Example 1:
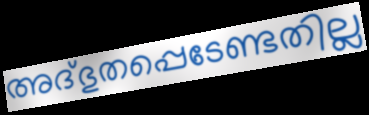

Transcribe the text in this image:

അദ്ഭുതപ്പെടേണ്ടതില്ല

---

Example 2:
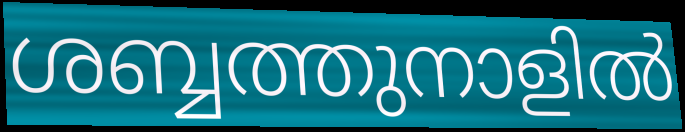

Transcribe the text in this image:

ശബ്ബത്തുനാളിൽ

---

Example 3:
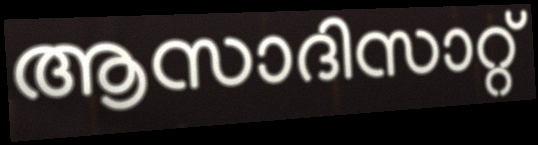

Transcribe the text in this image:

ആസാദിസാറ്റ്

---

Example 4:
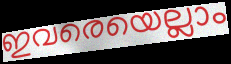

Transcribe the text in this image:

ഇവരെയെല്ലാം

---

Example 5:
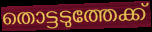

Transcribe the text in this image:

തൊട്ടടുത്തേക്ക്